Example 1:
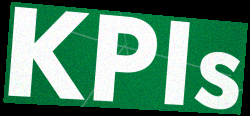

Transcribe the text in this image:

KPIs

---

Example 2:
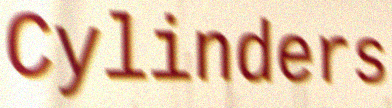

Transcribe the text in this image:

Cylinders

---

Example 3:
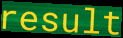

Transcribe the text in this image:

result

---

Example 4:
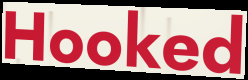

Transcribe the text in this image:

Hooked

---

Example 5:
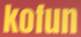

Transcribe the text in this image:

kofun